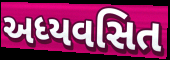
અધ્યવસિત